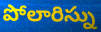
పోలారిస్ను